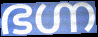
ഭഗ്ന